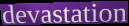
devastation